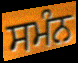
ਸਮੰਨ